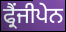
ਫ੍ਰੈਂਜੀਪੇਨ